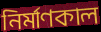
নির্মাণকাল